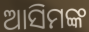
ଆସିମଙ୍କ